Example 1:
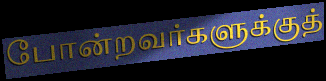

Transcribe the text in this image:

போன்றவர்களுக்குத்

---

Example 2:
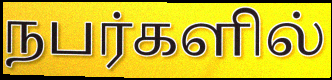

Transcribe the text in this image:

நபர்களில்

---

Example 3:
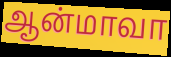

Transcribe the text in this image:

ஆன்மாவா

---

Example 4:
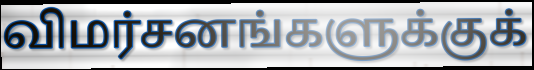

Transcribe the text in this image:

விமர்சனங்களுக்குக்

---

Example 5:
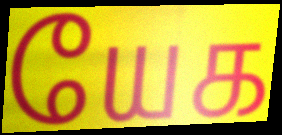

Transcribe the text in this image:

யேக